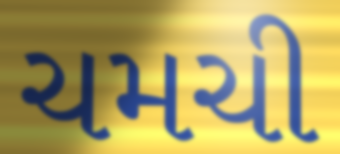
ચમચી